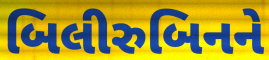
બિલીરુબિનને